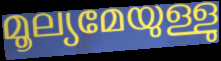
മൂല്യമേയുള്ളു